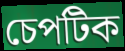
চেপটিক